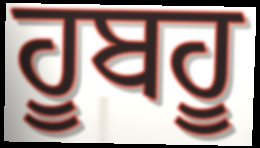
ਹੂਬਹੂ